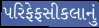
પરિફેફસીકલાનું